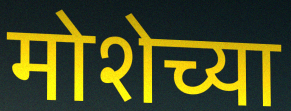
मोशेच्या